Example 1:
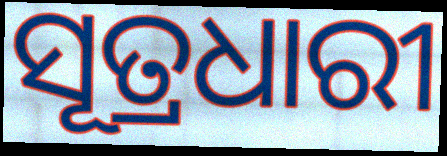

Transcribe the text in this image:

ସୂତ୍ରଧାରୀ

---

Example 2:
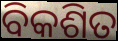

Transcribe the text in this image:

ବିକଶିତ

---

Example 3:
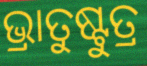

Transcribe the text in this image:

ଭ୍ରାତୁଷ୍ଟୁତ୍ର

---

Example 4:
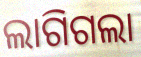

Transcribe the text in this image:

ଲାଗିଗଲା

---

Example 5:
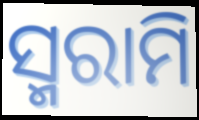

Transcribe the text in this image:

ସ୍ମରାମି